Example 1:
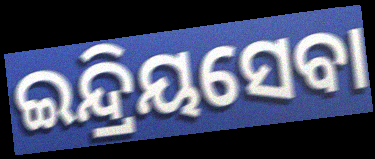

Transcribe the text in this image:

ଇନ୍ଦ୍ରିୟସେବା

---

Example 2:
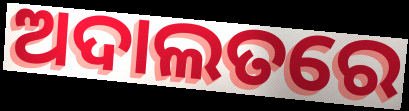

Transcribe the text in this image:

ଅଦାଲତରେ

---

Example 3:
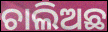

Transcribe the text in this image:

ଚାଲିଅଛ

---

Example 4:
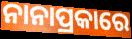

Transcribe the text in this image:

ନାନାପ୍ରକାରେ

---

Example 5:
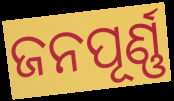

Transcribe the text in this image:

ଜନପୂର୍ଣ୍ଣ